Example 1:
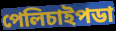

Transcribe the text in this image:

পেলিচাইপডা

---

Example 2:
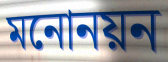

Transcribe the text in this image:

মনোনয়ন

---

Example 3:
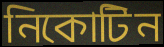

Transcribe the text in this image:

নিকোটিন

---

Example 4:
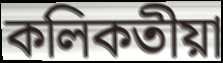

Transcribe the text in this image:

কলিকতীয়া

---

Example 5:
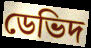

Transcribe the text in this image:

ডেভিদ